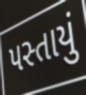
પસ્તાયું